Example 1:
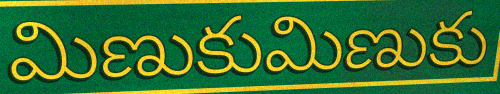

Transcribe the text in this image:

మిణుకుమిణుకు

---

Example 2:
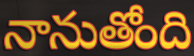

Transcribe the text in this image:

నానుతోంది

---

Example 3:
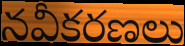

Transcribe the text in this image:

నవీకరణలు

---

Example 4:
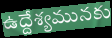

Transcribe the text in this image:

ఉద్దేశ్యమునకు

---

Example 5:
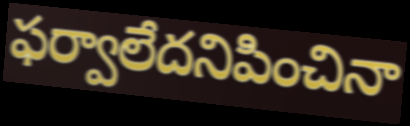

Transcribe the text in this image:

ఫర్వాలేదనిపించినా